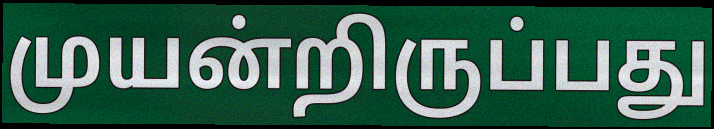
முயன்றிருப்பது